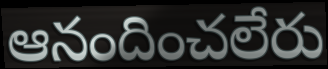
ఆనందించలేరు